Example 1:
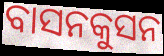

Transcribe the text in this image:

ବାସନକୁସନ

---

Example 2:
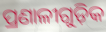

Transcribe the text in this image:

ପ୍ରଣାଳୀଗୁଡ଼ିକ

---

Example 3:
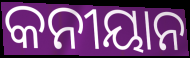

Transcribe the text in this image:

କନୀୟାନ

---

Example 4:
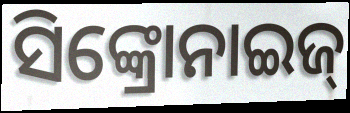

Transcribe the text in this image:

ସିଙ୍କ୍ରୋନାଇଜ୍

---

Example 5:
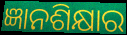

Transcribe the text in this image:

ଜ୍ଞାନଶିକ୍ଷାର